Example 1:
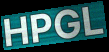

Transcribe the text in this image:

HPGL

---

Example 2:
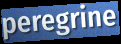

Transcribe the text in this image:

peregrine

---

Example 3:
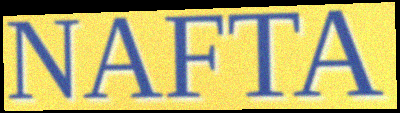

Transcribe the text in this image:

NAFTA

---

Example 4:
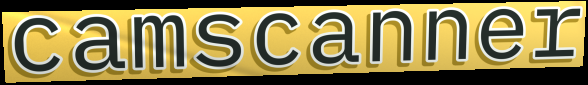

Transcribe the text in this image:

camscanner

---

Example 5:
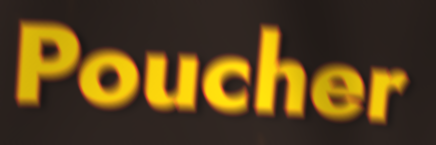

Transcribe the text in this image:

Poucher